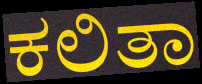
ಕಲಿತಾ